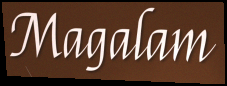
Magalam